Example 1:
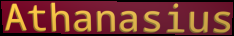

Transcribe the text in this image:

Athanasius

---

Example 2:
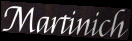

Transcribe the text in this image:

Martinich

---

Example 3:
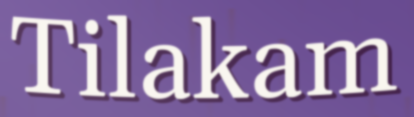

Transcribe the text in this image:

Tilakam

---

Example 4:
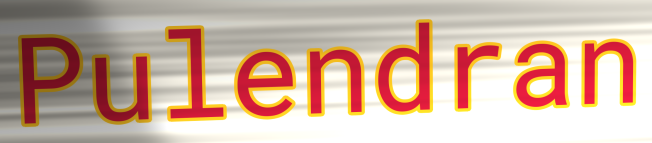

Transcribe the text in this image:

Pulendran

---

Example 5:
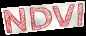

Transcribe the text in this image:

NDVI